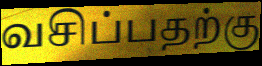
வசிப்பதற்கு